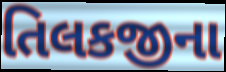
તિલકજીના